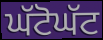
ਘੱਟੋਘੱਟ